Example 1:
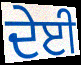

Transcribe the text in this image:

ਦੇਈ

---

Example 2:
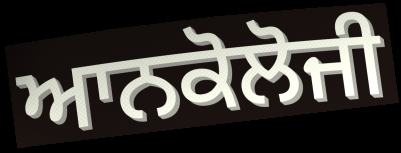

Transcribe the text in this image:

ਆਨਕੋਲੋਜੀ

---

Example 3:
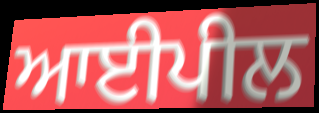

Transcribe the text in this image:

ਆਈਪੀਲ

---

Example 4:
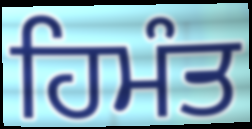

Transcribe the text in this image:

ਹਿਮੰਤ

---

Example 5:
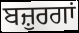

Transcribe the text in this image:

ਬਜ਼ੁਰਗਾਂ